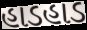
હાડહાડ